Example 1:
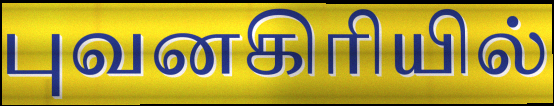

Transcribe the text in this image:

புவனகிரியில்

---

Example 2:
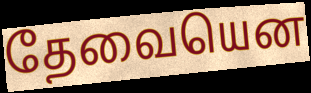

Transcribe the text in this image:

தேவையென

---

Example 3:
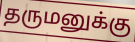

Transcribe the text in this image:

தருமனுக்கு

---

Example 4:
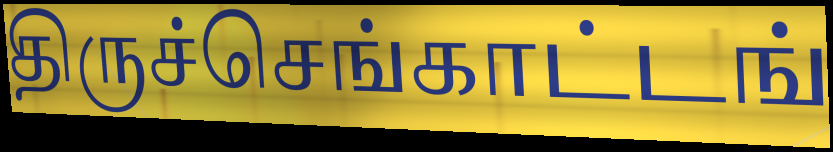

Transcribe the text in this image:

திருச்செங்காட்டங்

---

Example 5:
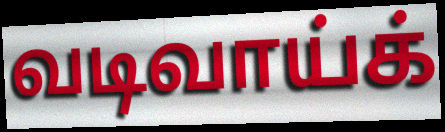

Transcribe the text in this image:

வடிவாய்க்